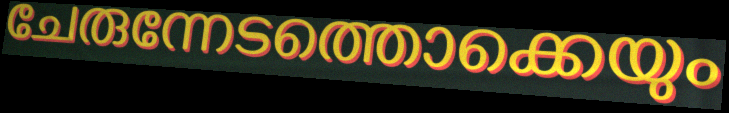
ചേരുന്നേടത്തൊക്കെയും